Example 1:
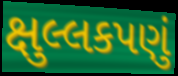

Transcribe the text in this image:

ક્ષુલ્લકપણું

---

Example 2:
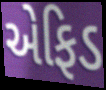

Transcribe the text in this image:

એફિડ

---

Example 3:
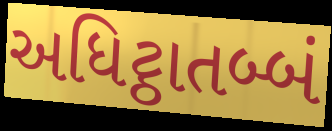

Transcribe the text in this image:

અધિટ્ઠાતબ્બં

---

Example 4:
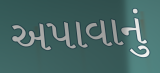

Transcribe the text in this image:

અપાવાનું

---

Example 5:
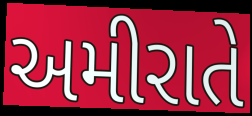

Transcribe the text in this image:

અમીરાતે